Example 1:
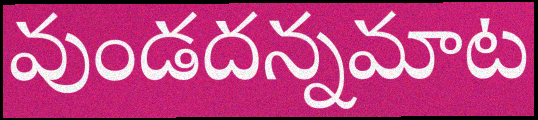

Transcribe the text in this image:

వుండదన్నమాట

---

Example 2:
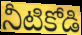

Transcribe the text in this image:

నీటికోడి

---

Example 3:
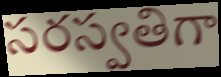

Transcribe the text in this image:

సరస్వతిగా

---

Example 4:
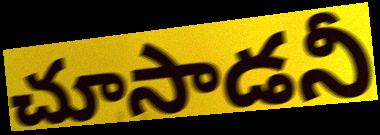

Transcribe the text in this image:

చూసాడనీ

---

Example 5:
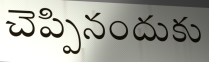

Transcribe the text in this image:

చెప్పినందుకు